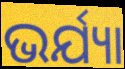
ଭର୍ଯ୍ୟା